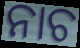
ନାଚ